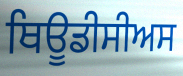
ਥਿਊਡੀਸੀਅਸ